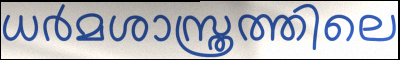
ധർമശാസ്ത്രത്തിലെ